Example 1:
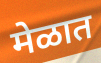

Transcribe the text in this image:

मेळात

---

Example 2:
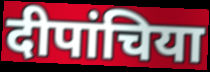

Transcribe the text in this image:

दीपांचिया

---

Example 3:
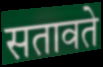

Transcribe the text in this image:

सतावते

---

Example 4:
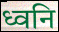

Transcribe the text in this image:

ध्वनि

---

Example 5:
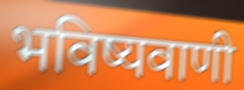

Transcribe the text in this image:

भविष्यवाणी